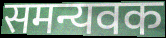
समन्यवक